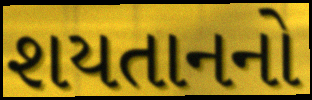
શયતાનનો